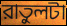
রাতুলটা